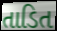
તાડિત